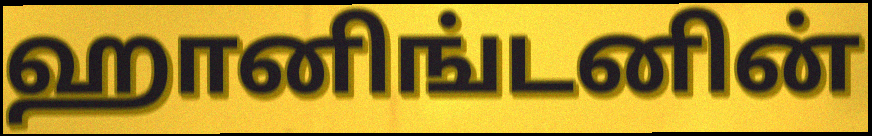
ஹானிங்டனின்